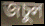
জচুল